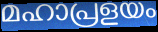
മഹാപ്രളയം